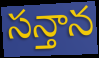
సన్తాన